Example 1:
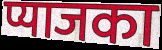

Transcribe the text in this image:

प्याजका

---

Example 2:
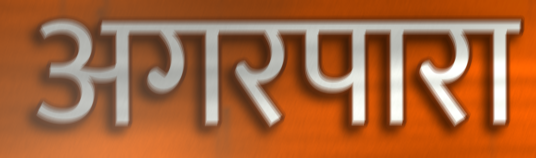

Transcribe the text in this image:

अगरपारा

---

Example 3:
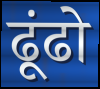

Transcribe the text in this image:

ढूंढो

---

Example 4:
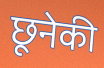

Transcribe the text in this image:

छूनेकी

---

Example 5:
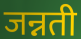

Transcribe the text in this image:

जन्नती